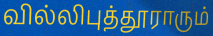
வில்லிபுத்தூராரும்